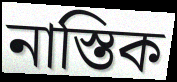
নাস্তিক